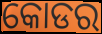
କୋଡର